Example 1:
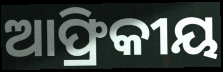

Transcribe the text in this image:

ଆଫ୍ରିକୀୟ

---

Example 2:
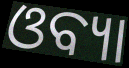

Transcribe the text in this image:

ଓବ୍ୟା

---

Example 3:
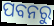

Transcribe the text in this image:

ପବନରୁ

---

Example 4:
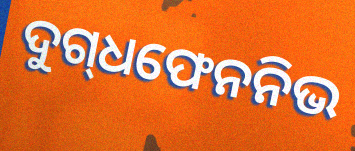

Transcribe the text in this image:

ଦୁଗ୍‍ଧଫେନନିଭ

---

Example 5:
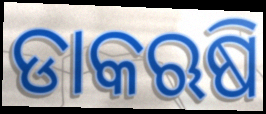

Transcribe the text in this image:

ଡାକଋଷି